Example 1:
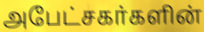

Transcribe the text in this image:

அபேட்சகர்களின்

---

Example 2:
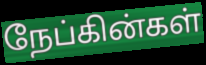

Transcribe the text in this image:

நேப்கின்கள்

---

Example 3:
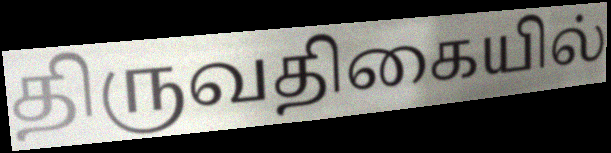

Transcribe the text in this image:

திருவதிகையில்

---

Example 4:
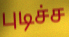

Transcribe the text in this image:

புடிச்ச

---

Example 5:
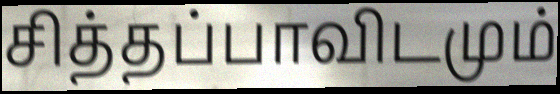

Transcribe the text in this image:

சித்தப்பாவிடமும்